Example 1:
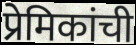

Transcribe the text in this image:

प्रेमिकांची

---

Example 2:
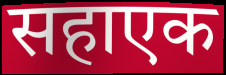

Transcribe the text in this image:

सहाएक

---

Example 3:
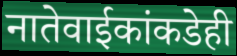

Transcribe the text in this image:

नातेवाईकांकडेही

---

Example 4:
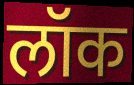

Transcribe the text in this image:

लॉक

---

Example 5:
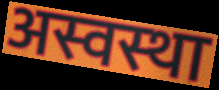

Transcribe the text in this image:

अस्वस्था